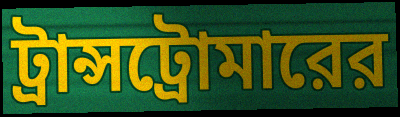
ট্রান্সট্রোমারের